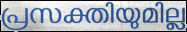
പ്രസക്തിയുമില്ല